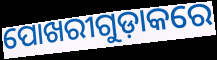
ପୋଖରୀଗୁଡ଼ାକରେ